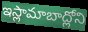
ఇస్లామాబాద్లోని